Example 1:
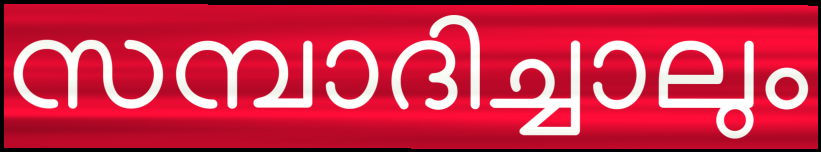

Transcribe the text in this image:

സമ്പാദിച്ചാലും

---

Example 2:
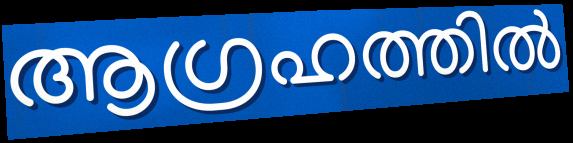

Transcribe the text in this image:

ആഗ്രഹത്തിൽ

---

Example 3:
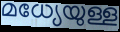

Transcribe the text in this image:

മധ്യേയുള്ള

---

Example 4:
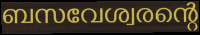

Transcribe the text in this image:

ബസവേശ്വരന്റെ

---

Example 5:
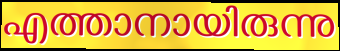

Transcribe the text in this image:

എത്താനായിരുന്നു